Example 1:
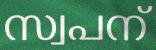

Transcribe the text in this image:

സ്വപന്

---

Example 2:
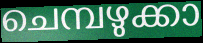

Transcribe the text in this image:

ചെമ്പഴുക്കാ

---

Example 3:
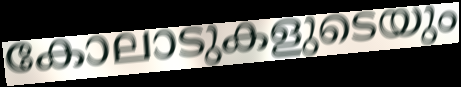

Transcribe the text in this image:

കോലാടുകളുടെയും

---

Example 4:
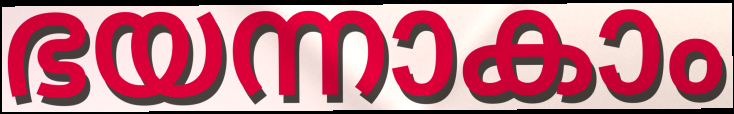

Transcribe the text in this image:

ഭയന്നാകാം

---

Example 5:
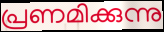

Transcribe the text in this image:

പ്രണമിക്കുന്നു